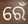
ରେଁ